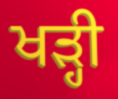
ਖੜ੍ਹੀ